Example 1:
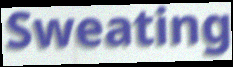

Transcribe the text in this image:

Sweating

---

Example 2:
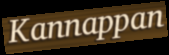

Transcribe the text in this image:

Kannappan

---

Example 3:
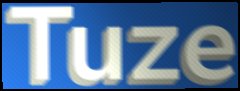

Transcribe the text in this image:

Tuze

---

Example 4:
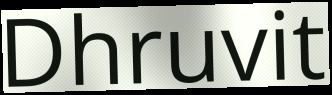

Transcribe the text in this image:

Dhruvit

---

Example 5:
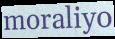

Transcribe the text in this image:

moraliyo